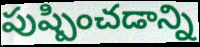
పుష్పించడాన్ని